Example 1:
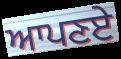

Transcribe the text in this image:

ਆਪਣਏ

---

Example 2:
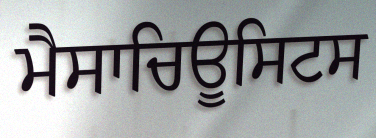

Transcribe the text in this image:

ਮੈਸਾਚਿਊਸਿਟਸ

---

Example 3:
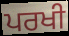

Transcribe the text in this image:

ਪਰਖੀ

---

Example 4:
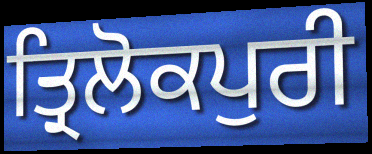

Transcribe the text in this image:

ਤ੍ਰਿਲੋਕਪੁਰੀ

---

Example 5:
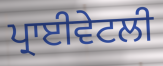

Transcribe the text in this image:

ਪ੍ਰਾਈਵੇਟਲੀ